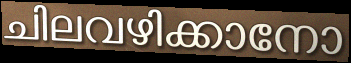
ചിലവഴിക്കാനോ